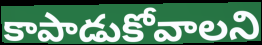
కాపాడుకోవాలని